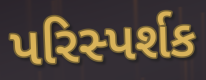
પરિસ્પર્શક